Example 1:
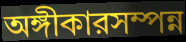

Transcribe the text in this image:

অঙ্গীকারসম্পন্ন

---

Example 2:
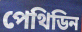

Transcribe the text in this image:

পেথিডিন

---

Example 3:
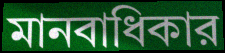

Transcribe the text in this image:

মানবাধিকার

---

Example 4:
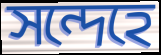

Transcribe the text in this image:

সন্দেহে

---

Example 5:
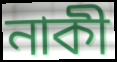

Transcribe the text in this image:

নাকী